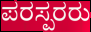
ಪರಸ್ಪರರು